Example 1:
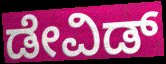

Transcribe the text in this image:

ಡೇವಿಡ್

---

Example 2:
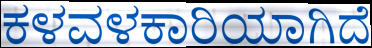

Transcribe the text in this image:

ಕಳವಳಕಾರಿಯಾಗಿದೆ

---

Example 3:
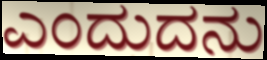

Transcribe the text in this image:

ಎಂದುದನು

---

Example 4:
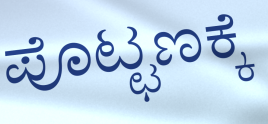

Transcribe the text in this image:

ಪೊಟ್ಟಣಕ್ಕೆ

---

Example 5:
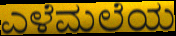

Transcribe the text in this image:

ಎಳೆಮಲೆಯ